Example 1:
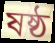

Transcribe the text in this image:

ষষ্ঠ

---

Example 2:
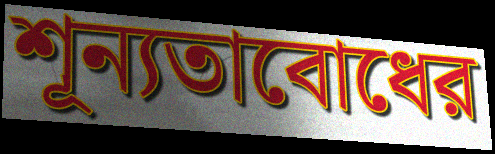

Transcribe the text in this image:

শূন্যতাবোধের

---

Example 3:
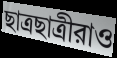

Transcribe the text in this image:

ছাত্রছাত্রীরাও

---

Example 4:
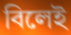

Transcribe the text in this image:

বিলেই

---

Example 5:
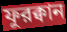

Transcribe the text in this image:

ফুরক্বান